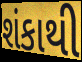
શંકાથી